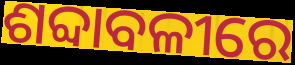
ଶବ୍ଦାବଳୀରେ